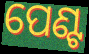
ପେଣ୍ଟ